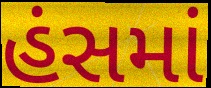
હંસમાં